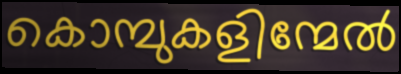
കൊമ്പുകളിന്മേൽ